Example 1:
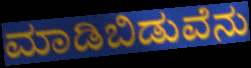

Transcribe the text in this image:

ಮಾಡಿಬಿಡುವೆನು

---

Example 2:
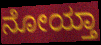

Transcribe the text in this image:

ನೋಯ್ತಾ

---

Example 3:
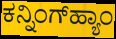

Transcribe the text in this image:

ಕನ್ನಿಂಗ್‌ಹ್ಯಾಂ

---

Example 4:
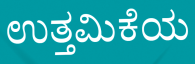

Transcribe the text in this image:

ಉತ್ತಮಿಕೆಯ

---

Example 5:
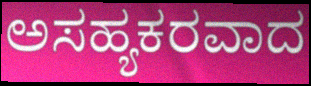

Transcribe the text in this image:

ಅಸಹ್ಯಕರವಾದ